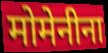
मोमेनीना